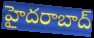
హైదరాబాద్